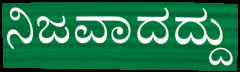
ನಿಜವಾದದ್ದು